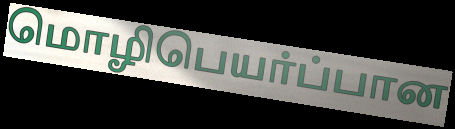
மொழிபெயர்ப்பான